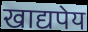
खाद्यपेय